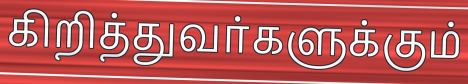
கிறித்துவர்களுக்கும்